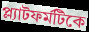
প্ল্যাটফর্মটিকে